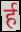
र्ह